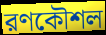
রণকৌশল